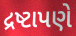
દ્રષ્ટાપણે